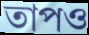
তাপও